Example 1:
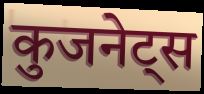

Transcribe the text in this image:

कुजनेट्स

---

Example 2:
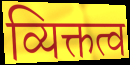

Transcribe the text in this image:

व्यिक्तत्व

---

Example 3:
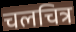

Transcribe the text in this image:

चलचित्र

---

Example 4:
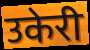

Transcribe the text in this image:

उकेरी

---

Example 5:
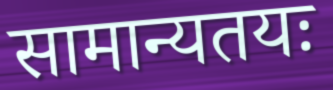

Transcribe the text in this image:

सामान्यतयः